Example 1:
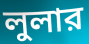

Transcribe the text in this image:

লুলার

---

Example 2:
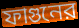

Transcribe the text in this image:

ফাগুনের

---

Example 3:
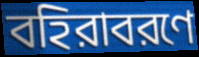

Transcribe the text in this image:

বহিরাবরণে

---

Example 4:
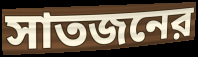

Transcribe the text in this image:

সাতজনের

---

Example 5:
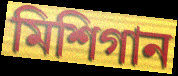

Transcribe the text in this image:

মিশিগান